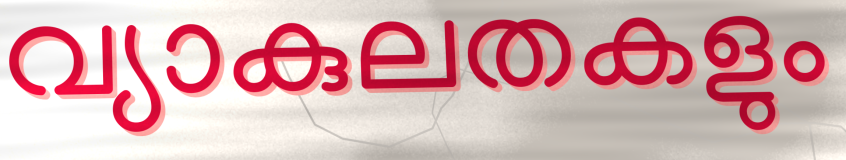
വ്യാകുലതകളും